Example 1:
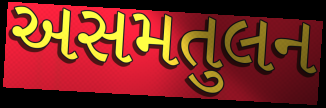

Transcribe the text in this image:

અસમતુલન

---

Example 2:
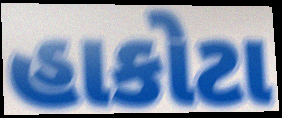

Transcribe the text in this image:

હાકોટા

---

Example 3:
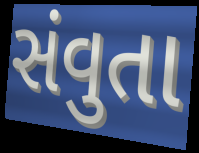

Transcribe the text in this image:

સંવુતા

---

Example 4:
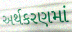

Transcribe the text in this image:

અર્થકરણમાં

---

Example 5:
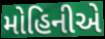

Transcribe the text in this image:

મોહિનીએ